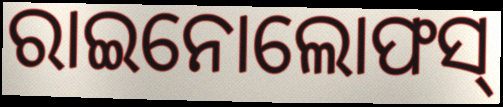
ରାଇନୋଲୋଫସ୍